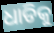
ଧାଡିକୁ